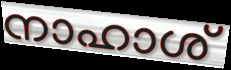
നാഹാശ്